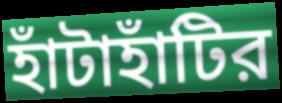
হাঁটাহাঁটির